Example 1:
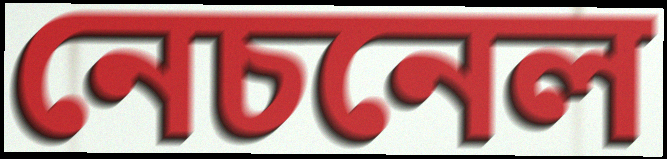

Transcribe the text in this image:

নেচনেল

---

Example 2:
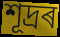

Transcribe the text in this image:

শূদ্ৰৰ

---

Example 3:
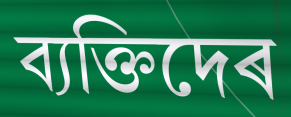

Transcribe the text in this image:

ব্যক্তিদেৰ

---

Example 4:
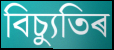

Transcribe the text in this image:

বিচ্যুতিৰ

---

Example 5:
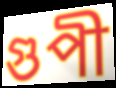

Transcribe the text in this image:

গুপী